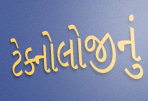
ટેક્નોલોજીનું